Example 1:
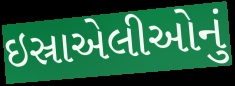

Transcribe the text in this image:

ઇસ્રાએલીઓનું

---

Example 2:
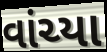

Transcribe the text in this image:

વાંચ્યા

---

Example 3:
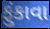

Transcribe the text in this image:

ફુંકાવા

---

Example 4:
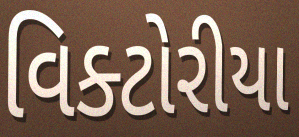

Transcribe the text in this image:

વિક્ટોરીયા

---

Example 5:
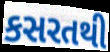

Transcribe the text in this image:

કસરતથી